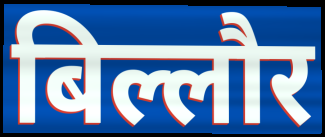
बिल्लौर